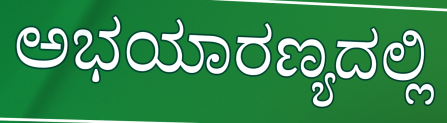
ಅಭಯಾರಣ್ಯದಲ್ಲಿ